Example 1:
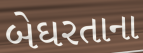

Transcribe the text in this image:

બેઘરતાના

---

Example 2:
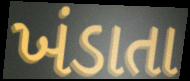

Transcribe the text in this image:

ખંડાતા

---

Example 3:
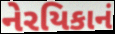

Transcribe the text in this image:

નેરયિકાનં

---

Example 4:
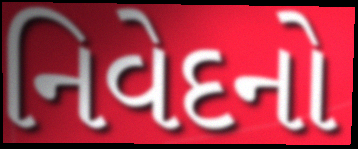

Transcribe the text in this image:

નિવેદનો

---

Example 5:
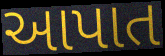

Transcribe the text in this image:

આપાત